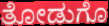
ತೋಡುಗೊ